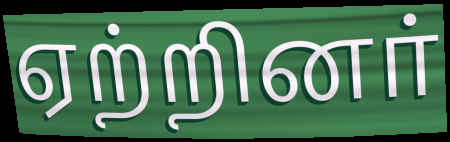
ஏற்றினர்